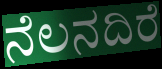
ನೆಲನದಿರೆ